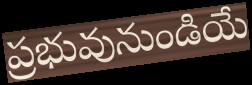
ప్రభువునుండియే